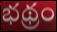
భథ్రం